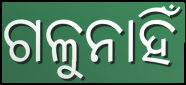
ଗଳୁନାହିଁ